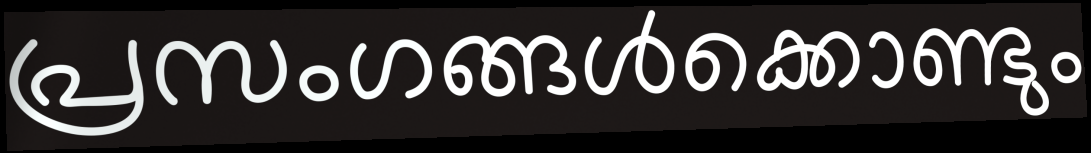
പ്രസംഗങ്ങൾക്കൊണ്ടും